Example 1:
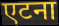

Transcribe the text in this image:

एटना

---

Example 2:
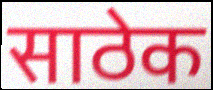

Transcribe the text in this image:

साठेक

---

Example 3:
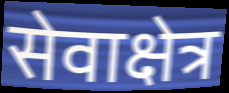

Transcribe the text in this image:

सेवाक्षेत्र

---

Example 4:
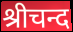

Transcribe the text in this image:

श्रीचन्द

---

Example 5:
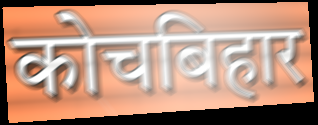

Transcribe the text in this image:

कोचबिहार